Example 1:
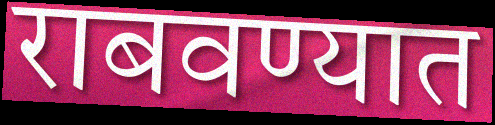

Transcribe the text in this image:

राबवण्यात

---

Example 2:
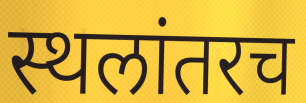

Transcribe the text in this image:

स्थलांतरच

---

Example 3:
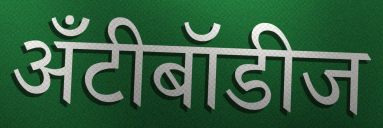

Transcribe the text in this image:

अँटीबॉडीज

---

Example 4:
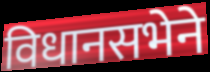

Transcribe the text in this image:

विधानसभेने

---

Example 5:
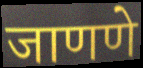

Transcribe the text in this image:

जाणणे